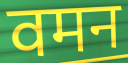
वमन